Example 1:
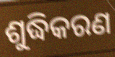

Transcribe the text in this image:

ଶୁଦ୍ଧିକରଣ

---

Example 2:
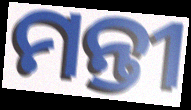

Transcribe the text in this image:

ମନ୍ତୀ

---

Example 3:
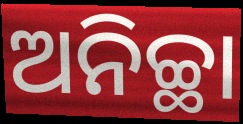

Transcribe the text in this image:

ଅନିଚ୍ଛା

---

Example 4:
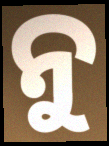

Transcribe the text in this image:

ନୁ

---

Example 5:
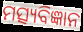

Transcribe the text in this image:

ମତ୍ସ୍ୟବିଜ୍ଞାନ